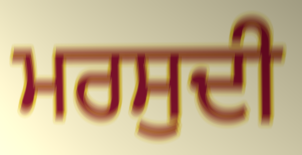
ਮਰਸੁਦੀ